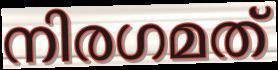
നിരഗമത്